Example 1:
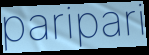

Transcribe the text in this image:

paripari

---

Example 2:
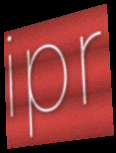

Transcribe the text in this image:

ipr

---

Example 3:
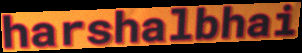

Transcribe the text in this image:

harshalbhai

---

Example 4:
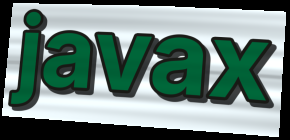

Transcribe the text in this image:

javax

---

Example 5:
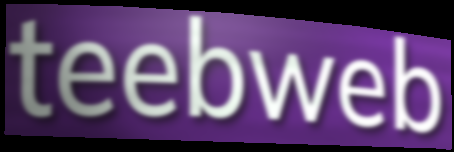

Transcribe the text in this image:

teebweb